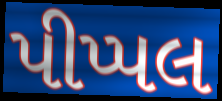
પીપ્પલ